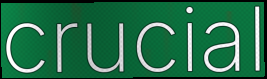
crucial